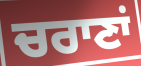
ਚਰਾਣਾਂ